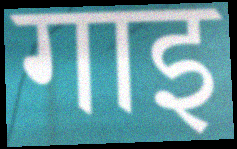
गाइ